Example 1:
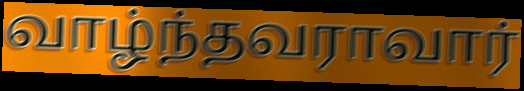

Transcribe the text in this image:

வாழ்ந்தவராவார்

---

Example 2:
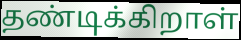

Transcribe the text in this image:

தண்டிக்கிறாள்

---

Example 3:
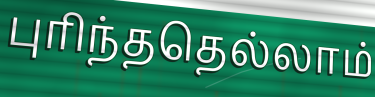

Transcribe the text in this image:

புரிந்ததெல்லாம்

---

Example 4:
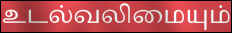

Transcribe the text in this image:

உடல்வலிமையும்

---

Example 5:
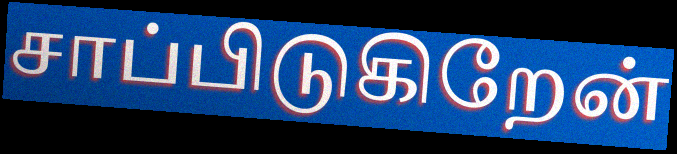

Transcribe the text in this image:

சாப்பிடுகிறேன்